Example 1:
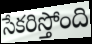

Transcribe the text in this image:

సేకరిస్తోంది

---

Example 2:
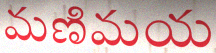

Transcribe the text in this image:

మణిమయ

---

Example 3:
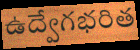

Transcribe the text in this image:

ఉద్వేగభరిత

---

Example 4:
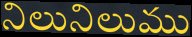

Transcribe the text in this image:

నిలునిలుము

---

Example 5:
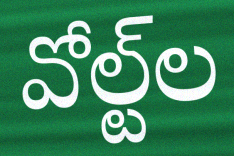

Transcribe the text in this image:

వోల్ట్‌ల